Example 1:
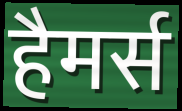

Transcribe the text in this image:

हैमर्स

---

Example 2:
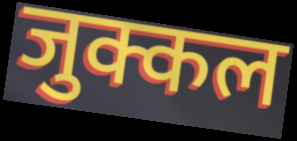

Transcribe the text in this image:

जुक्कल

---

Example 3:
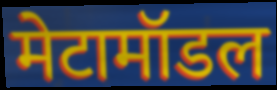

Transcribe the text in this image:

मेटामॉडल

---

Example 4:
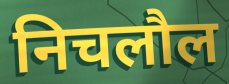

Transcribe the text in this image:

निचलौल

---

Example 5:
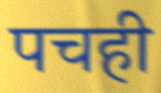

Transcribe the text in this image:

पचही